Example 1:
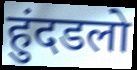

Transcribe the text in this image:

हुंदडलो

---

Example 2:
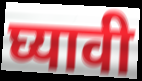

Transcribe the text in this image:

घ्यावी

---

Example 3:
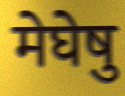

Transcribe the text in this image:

मेघेषु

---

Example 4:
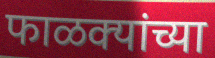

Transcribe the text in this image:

फाळक्यांच्या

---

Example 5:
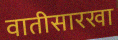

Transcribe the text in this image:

वातीसारखा